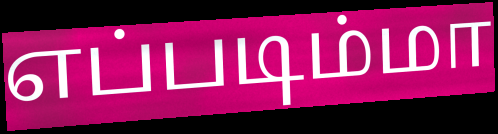
எப்படிம்மா